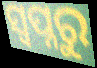
ସ୍ବପ୍ନରୁ